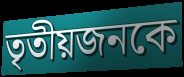
তৃতীয়জনকে